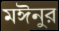
মঈনুর